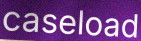
caseload